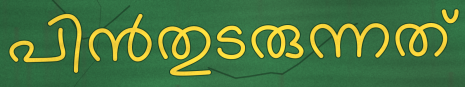
പിൻതുടരുന്നത്